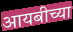
आयबीच्या